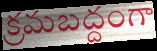
క్రమబద్దంగా